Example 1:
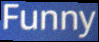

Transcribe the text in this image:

Funny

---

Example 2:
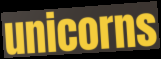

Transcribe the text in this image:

unicorns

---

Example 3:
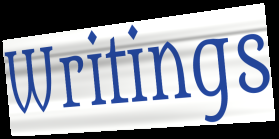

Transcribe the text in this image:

Writings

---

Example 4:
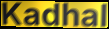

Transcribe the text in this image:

Kadhal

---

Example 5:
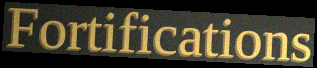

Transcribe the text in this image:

Fortifications